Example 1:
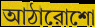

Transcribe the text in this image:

আঠারোশো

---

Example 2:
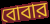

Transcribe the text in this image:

বোবার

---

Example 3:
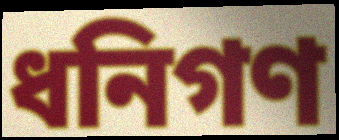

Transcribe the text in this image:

ধনিগণ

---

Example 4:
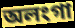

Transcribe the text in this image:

অলংগা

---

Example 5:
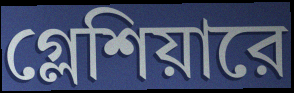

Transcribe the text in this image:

গ্লেশিয়ারে